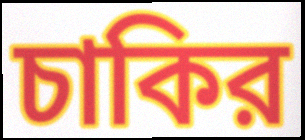
চাকির